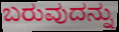
ಬರುವುದನ್ನು